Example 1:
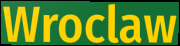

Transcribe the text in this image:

Wroclaw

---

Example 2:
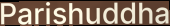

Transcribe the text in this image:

Parishuddha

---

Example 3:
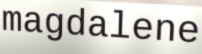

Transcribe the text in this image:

magdalene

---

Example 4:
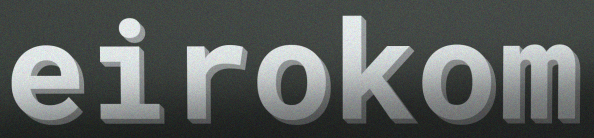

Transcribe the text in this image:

eirokom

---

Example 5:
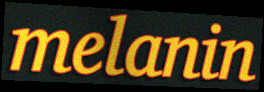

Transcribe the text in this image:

melanin